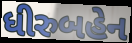
ધીરુબહેન